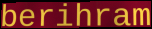
berihram